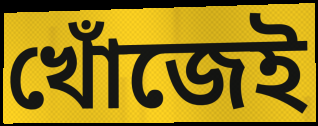
খোঁজেই